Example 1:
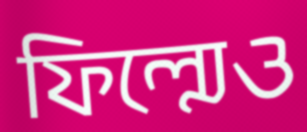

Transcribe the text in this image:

ফিল্মেও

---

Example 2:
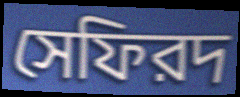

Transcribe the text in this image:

সেফিরদ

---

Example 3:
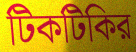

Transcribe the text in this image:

টিকটিকির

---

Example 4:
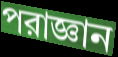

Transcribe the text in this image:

পরাজ্ঞান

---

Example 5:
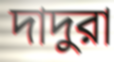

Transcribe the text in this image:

দাদুরা